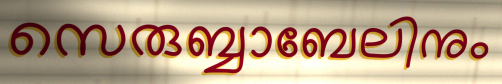
സെരുബ്ബാബേലിനും